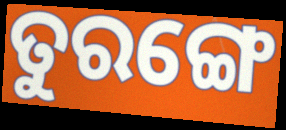
ତୁରଙ୍ଗେ